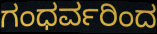
ಗಂಧರ್ವರಿಂದ